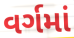
વર્ગમાં